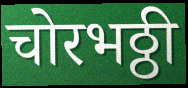
चोरभठ्ठी